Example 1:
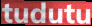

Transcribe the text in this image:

tudutu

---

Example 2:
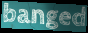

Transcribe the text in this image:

banged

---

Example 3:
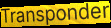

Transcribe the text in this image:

Transponder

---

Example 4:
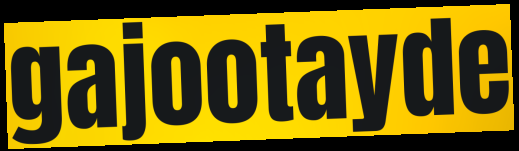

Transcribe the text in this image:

gajootayde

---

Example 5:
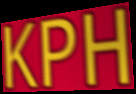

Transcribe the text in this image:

KPH